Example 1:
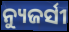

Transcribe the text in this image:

ନ୍ୟୁଜର୍ସୀ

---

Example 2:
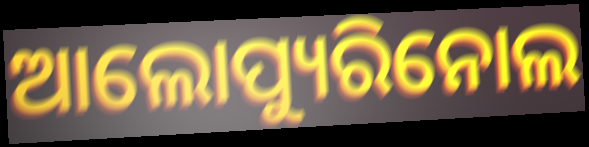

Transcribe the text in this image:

ଆଲୋପ୍ୟୁରିନୋଲ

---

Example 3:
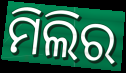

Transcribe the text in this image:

ମିଲିର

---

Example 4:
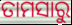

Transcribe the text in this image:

ତାମସାରୁ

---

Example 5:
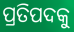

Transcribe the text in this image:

ପ୍ରତିପଦକୁ